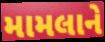
મામલાને